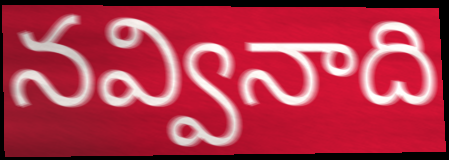
నవ్వినాది